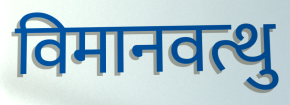
विमानवत्थु